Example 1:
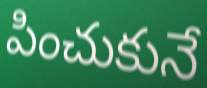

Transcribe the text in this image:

పించుకునే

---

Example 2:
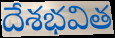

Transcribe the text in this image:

దేశభవిత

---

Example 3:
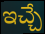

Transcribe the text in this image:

ఇచ్చే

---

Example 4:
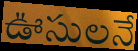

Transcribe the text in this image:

ఊసులనే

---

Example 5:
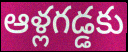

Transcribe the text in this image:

ఆళ్లగడ్డకు